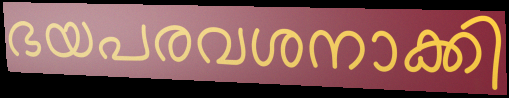
ഭയപരവശനാക്കി